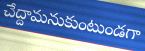
చేద్దామనుకుంటుండగా